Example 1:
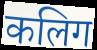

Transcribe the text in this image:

कलिग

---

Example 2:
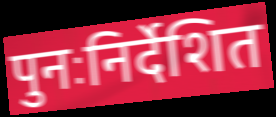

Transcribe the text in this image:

पुनःनिर्देशित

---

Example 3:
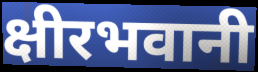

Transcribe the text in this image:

क्षीरभवानी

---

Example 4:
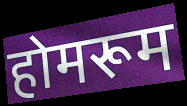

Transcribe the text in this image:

होमरूम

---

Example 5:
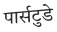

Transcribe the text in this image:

पार्सटुडे